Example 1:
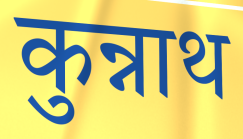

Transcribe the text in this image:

कुन्नाथ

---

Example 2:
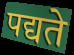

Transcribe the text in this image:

पद्यते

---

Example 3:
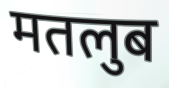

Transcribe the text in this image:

मतलुब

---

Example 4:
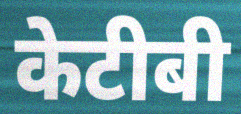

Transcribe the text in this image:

केटीबी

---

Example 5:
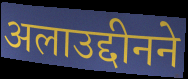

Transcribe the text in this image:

अलाउद्दीनने